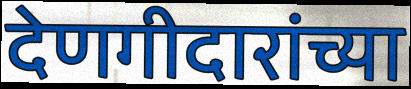
देणगीदारांच्या